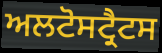
ਅਲਟੋਸਟ੍ਰੈਟਸ